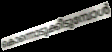
കൊന്നൊടുക്കീടുമ്പോൾ